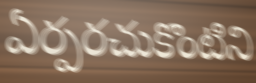
ఏర్పరచుకొంటిని